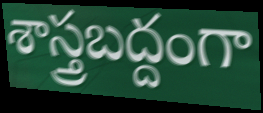
శాస్త్రబద్దంగా